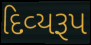
દિવ્‍યરૂપ